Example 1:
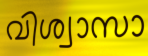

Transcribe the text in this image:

വിശ്വാസാ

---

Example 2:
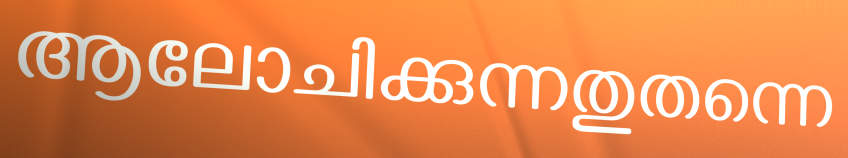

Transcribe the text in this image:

ആലോചിക്കുന്നതുതന്നെ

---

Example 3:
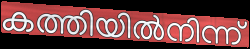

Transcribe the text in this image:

കത്തിയിൽനിന്ന്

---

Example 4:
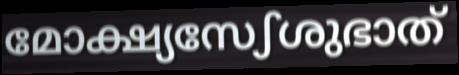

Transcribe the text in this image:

മോക്ഷ്യസേഽശുഭാത്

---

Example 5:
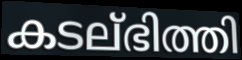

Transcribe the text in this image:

കടല്ഭിത്തി